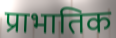
प्राभातिक